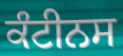
ਕੰਟੀਨਸ